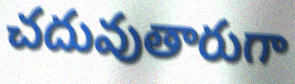
చదువుతారుగా